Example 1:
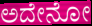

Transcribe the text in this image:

ಅದೇನೋ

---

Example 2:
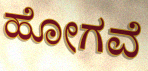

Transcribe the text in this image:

ಹೋಗವೆ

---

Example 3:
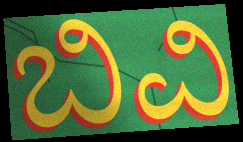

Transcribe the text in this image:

ಬಿವಿ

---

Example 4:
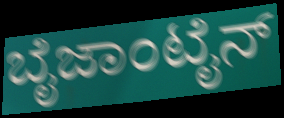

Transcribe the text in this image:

ಬೈಜಾಂಟೈನ್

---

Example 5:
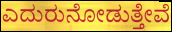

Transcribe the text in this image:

ಎದುರುನೋಡುತ್ತೇವೆ